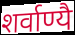
शर्वाण्यै